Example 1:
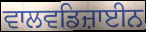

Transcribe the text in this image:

ਵਾਲਵਡਿਜ਼ਾਈਨ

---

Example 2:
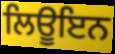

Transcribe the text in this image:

ਲਿਊਇਨ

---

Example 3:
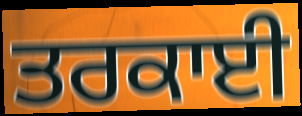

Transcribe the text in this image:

ਤਰਕਾਈ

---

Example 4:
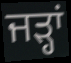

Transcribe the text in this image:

ਜੜ੍ਹਾਂ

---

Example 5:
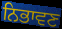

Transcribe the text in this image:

ਨਿਭਾਵਣ